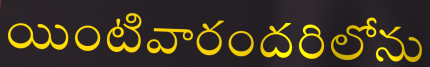
యింటివారందరిలోను